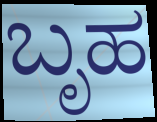
ಬೃಹ